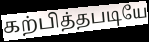
கற்பித்தபடியே